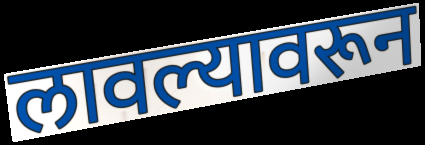
लावल्यावरून